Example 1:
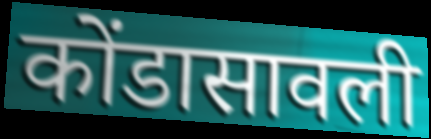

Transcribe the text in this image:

कोंडासावली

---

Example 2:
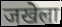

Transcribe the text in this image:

जखेला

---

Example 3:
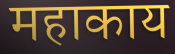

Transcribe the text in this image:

महाकाय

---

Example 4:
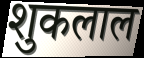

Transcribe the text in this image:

शुकलाल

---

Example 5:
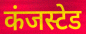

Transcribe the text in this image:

कंजस्टेड